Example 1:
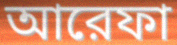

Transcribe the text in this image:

আরেফা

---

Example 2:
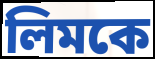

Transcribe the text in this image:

লিমকে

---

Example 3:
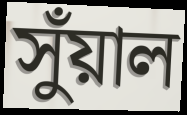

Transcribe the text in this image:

সুঁয়াল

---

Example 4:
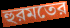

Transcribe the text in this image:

হুরমতের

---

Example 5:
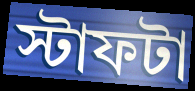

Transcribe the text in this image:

স্টাফটা